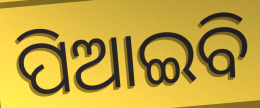
ପିଆଇବି